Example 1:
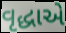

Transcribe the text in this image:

વૃદ્ધાએ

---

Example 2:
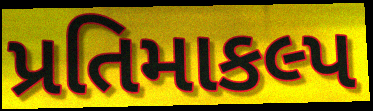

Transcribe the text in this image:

પ્રતિમાકલ્પ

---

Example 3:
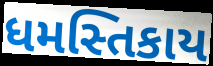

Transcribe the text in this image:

ધમસ્તિકાય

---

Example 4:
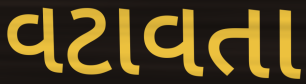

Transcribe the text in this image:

વટાવતા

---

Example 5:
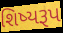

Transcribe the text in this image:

શિષ્યરૂપ